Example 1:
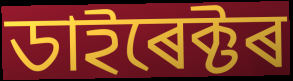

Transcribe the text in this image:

ডাইৰেক্টৰ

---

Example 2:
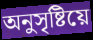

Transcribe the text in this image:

অনুসৃষ্টিয়ে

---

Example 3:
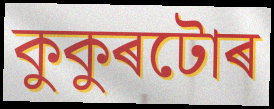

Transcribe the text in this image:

কুকুৰটোৰ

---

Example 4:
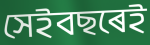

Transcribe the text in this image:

সেইবছৰেই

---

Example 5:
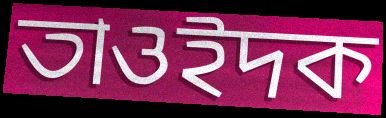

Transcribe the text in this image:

তাওইদক